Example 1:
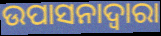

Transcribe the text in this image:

ଉପାସନାଦ୍ଵାରା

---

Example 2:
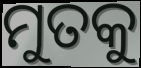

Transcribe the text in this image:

ମୁତକୁ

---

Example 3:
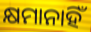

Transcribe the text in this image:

କ୍ଷମାନାହିଁ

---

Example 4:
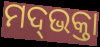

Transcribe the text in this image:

ମଦ୍‌ଭକ୍ତା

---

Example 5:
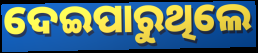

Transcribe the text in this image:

ଦେଇପାରୁଥିଲେ